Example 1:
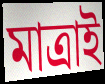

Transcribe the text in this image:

মাত্ৰাই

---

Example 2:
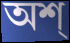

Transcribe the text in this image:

অশ্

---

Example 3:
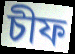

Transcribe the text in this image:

চীফ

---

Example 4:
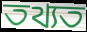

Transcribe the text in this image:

তথ্যত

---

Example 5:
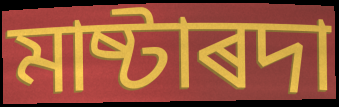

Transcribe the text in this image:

মাষ্টাৰদা